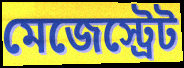
মেজেস্ট্রেট